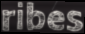
ribes